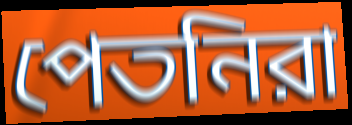
পেতনিরা